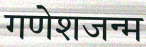
गणेशजन्म